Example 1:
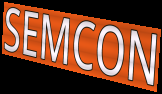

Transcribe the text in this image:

SEMCON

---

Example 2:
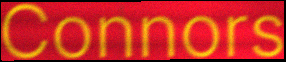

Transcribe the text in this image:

Connors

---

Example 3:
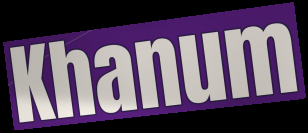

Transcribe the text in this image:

Khanum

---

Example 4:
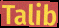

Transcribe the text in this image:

Talib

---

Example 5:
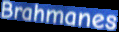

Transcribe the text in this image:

Brahmanes